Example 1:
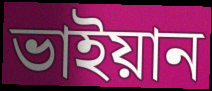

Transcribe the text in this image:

ভাইয়ান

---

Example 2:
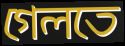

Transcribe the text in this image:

গেলতে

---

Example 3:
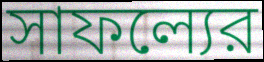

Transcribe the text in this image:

সাফল্যের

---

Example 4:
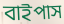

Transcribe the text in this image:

বাইপাস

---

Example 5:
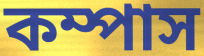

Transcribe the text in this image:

কম্পাস